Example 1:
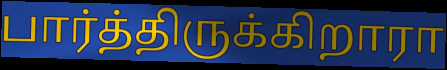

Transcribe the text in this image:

பார்த்திருக்கிறாரா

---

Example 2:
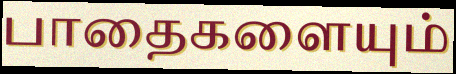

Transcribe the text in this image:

பாதைகளையும்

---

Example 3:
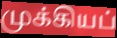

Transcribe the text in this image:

முக்கியப்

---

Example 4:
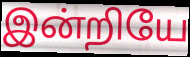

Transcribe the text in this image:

இன்றியே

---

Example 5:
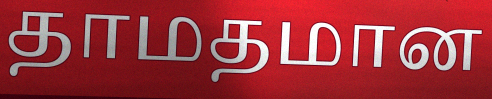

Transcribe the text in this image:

தாமதமான